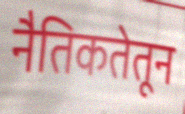
नैतिकतेतून